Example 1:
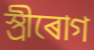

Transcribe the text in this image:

স্ত্ৰীৰোগ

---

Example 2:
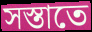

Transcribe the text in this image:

সস্তাতে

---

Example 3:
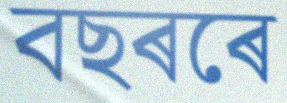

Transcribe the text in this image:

বছৰৰে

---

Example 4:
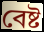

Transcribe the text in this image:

বেষ্ট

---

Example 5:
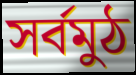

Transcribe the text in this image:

সৰ্বমুঠ